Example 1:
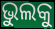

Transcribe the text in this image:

ଭୁଲକୁ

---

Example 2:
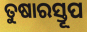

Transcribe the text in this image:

ତୁଷାରସ୍ତୂପ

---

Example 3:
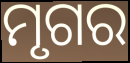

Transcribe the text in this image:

ମୃଗର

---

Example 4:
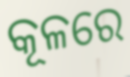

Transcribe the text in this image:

କୂଳରେ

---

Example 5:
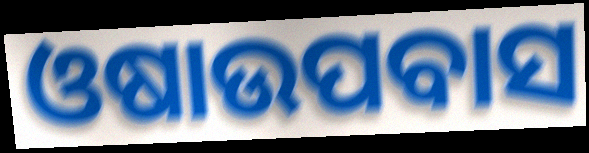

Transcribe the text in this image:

ଓଷାଉପବାସ